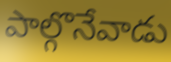
పాల్గొనేవాడు